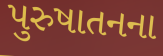
પુરુષાતનના